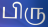
பிரு